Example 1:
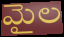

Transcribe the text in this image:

మైల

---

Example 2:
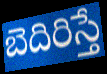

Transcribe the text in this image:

బెదిరిస్తే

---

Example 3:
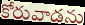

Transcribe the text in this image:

కోరువాడను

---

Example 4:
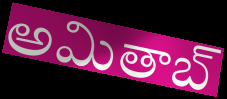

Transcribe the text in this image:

అమితాబ్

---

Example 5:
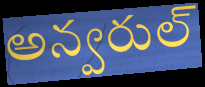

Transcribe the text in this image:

అన్వరుల్